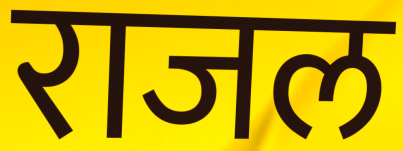
राजल